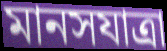
মানসযাত্রা